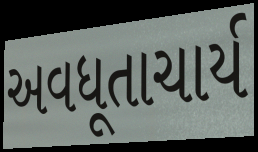
અવધૂતાચાર્ય